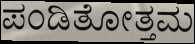
ಪಂಡಿತೋತ್ತಮ